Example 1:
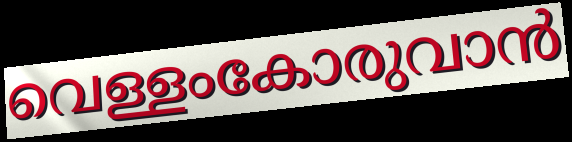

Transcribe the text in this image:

വെള്ളംകോരുവാൻ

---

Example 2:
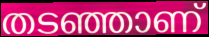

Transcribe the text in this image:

തടഞ്ഞാണ്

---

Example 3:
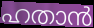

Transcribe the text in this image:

ഹതാൻ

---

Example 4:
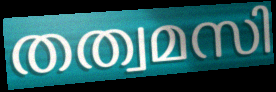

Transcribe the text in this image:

തത്വമസി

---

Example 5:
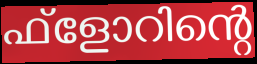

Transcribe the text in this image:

ഫ്ളോറിന്റെ